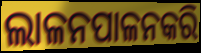
ଲାଳନପାଳନକରି